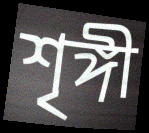
শৃঙ্গী